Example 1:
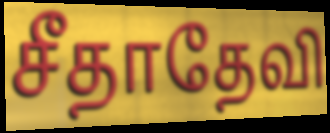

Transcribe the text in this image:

சீதாதேவி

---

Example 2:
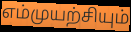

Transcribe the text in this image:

எம்முயற்சியும்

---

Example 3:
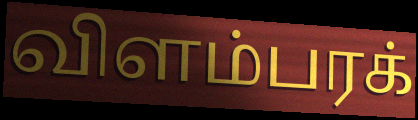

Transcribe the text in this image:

விளம்பரக்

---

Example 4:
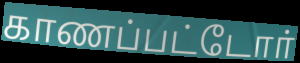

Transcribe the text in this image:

காணப்பட்டோர்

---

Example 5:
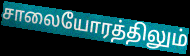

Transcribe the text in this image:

சாலையோரத்திலும்